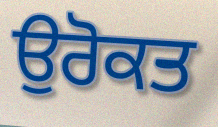
ਉਰੋਕਤ